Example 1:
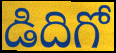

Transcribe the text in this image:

డిదిగో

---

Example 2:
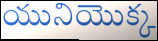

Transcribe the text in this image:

యునియొక్క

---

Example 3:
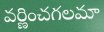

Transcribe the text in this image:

వర్ణించగలమా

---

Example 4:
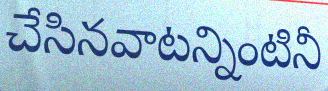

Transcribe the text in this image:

చేసినవాటన్నింటినీ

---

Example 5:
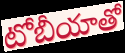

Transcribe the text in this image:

టోబీయాతో